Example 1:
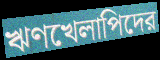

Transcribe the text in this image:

ঋণখেলাপিদের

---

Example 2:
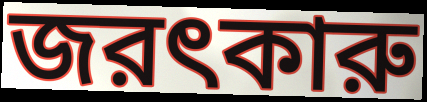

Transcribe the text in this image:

জরৎকারু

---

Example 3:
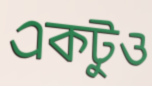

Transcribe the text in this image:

একটুও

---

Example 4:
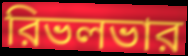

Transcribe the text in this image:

রিভলভার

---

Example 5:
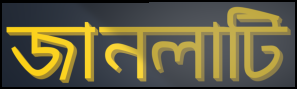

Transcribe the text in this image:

জানলাটি